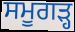
ਸਮੂਗੜ੍ਹ